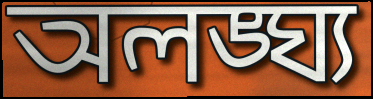
অলঙ্ঘ্য